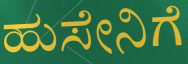
ಹುಸೇನಿಗೆ